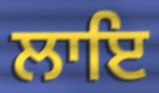
ਲਾਇ